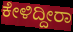
ಕೇಳಿದ್ದೀರಾ